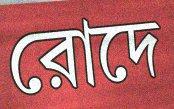
রোদে